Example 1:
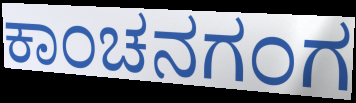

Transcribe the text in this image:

ಕಾಂಚನಗಂಗ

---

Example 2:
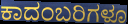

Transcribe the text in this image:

ಕಾದಂಬರಿಗಳೂ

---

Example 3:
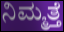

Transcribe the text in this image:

ನಿಮ್ಮತ್ತೆ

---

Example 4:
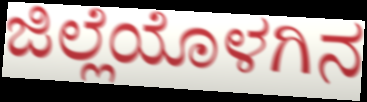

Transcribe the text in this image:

ಜಿಲ್ಲೆಯೊಳಗಿನ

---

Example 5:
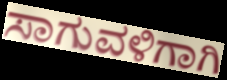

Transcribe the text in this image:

ಸಾಗುವಳಿಗಾಗಿ